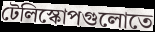
টেলিস্কোপগুলোতে